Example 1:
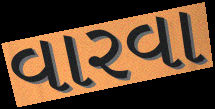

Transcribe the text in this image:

વારવા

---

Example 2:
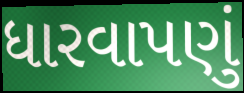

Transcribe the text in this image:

ધારવાપણું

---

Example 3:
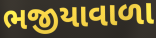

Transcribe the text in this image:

ભજીયાવાળા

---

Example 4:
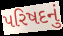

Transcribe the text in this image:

પરિષદનું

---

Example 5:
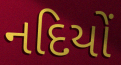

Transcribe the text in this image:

નદિયોં